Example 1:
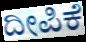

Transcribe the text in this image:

ದೀಪಿಕೆ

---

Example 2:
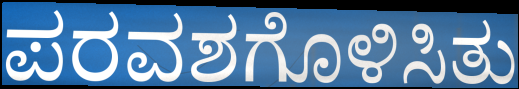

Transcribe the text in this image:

ಪರವಶಗೊಳಿಸಿತು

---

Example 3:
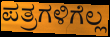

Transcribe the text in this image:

ಪತ್ರಗಳಿಗೆಲ್ಲ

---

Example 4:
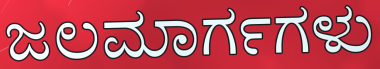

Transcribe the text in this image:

ಜಲಮಾರ್ಗಗಳು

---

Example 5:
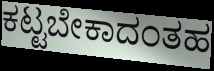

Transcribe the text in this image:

ಕಟ್ಟಬೇಕಾದಂತಹ